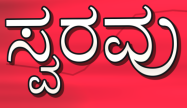
ಸ್ವರವು